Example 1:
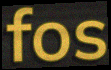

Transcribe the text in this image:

fos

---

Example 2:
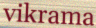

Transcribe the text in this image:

vikrama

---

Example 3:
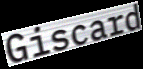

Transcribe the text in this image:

Giscard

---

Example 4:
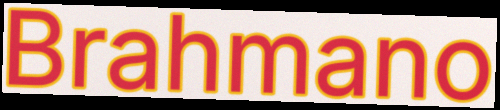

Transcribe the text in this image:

Brahmano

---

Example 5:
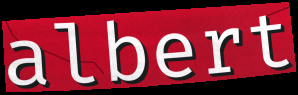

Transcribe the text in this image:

albert